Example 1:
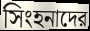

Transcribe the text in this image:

সিংহনাদের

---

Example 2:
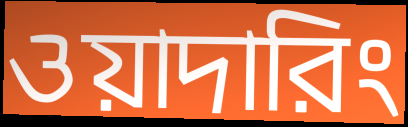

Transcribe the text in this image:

ওয়াদারিং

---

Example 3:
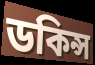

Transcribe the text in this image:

ডকিন্স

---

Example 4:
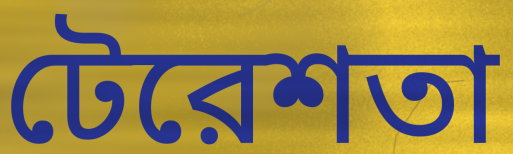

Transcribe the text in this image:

টেরেশতা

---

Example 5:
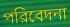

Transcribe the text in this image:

পরিবেদনা